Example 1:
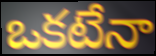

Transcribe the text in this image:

ఒకటేనా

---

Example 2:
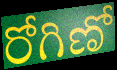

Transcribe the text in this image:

రోగిణో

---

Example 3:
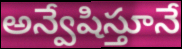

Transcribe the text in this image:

అన్వేషిస్తూనే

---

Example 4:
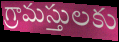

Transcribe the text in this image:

గ్రామస్తులకు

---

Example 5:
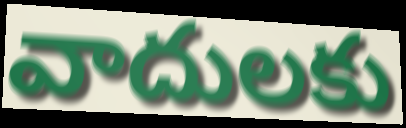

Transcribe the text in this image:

వాదులకు